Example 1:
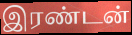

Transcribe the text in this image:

இரண்டன்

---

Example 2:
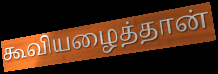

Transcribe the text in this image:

கூவியழைத்தான்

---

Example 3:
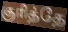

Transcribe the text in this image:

குரித்தே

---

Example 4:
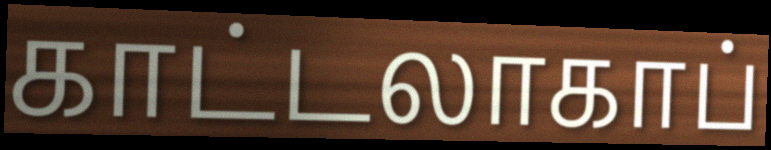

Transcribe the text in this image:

காட்டலாகாப்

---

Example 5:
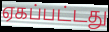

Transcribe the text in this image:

ஏகப்பட்டது